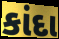
કાંદા